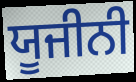
ਯੂਜੀਨੀ